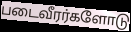
படைவீரர்களோடு